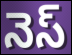
నెస్